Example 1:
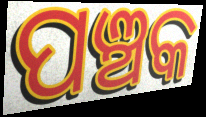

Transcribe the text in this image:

ପଞ୍ଚକ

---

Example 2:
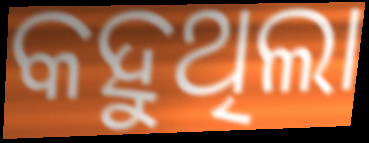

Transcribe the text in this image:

କହୁଥିଲା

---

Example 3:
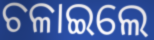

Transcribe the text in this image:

ଚଳାଇଲେ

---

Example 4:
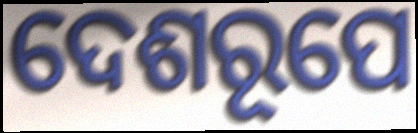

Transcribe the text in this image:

ଦେଶରୂପେ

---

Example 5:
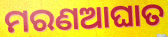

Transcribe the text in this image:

ମରଣଆଘାତ